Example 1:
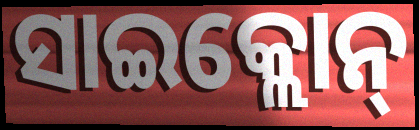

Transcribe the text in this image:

ସାଇକ୍ଲୋନ୍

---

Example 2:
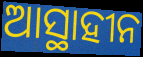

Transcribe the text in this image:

ଆସ୍ଥାହୀନ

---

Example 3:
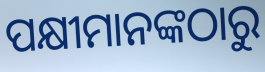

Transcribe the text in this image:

ପକ୍ଷୀମାନଙ୍କଠାରୁ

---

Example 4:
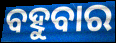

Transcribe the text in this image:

ବହୁବାର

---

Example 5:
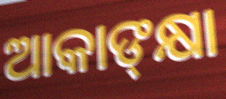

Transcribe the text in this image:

ଆକାଙ୍‌କ୍ଷା